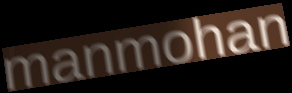
manmohan